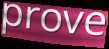
prove